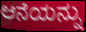
ಆನೆಯನ್ನು